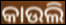
କାଉଲି